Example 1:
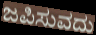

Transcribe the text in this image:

ಜಪಿಸುವದು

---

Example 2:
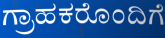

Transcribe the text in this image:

ಗ್ರಾಹಕರೊಂದಿಗೆ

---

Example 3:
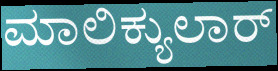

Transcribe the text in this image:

ಮಾಲಿಕ್ಯುಲಾರ್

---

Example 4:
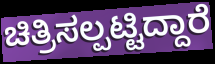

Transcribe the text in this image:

ಚಿತ್ರಿಸಲ್ಪಟ್ಟಿದ್ದಾರೆ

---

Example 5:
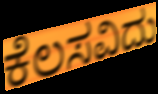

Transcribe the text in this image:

ಕೆಲಸವಿದು